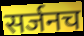
सर्जनच